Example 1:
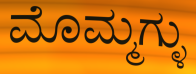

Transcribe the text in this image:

ಮೊಮ್ಮಗ್ಳು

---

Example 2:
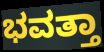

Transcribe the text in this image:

ಭವತ್ತಾ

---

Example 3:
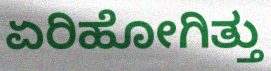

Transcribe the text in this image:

ಏರಿಹೋಗಿತ್ತು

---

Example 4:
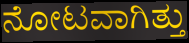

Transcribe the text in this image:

ನೋಟವಾಗಿತ್ತು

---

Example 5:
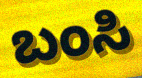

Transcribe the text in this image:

ಬಂಸಿ